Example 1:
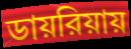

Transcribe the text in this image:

ডায়রিয়ায়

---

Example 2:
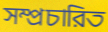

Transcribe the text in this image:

সম্প্রচারিত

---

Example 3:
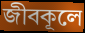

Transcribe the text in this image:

জীবকূলে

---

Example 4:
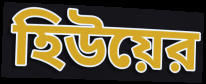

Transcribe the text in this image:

হিউয়ের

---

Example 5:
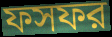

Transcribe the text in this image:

ফসফর